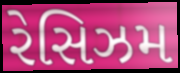
રેસિઝમ